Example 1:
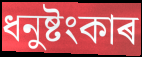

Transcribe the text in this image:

ধনুষ্টংকাৰ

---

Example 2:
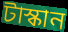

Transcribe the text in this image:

টাস্কান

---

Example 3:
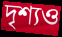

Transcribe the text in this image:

দৃশ্যও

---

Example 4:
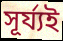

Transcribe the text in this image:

সূৰ্য্যই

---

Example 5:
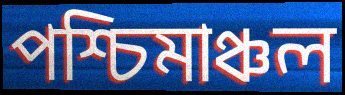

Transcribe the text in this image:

পশ্চিমাঞ্চল